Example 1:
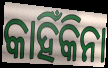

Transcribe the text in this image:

କାହିଁକିନା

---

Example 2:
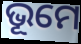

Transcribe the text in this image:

ଭୂମେ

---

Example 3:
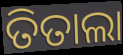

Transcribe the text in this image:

ତିତାଲା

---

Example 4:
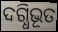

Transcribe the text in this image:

ଦଗ୍ଧିଭୂତ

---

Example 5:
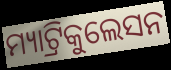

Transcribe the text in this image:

ମ୍ୟାଟ୍ରିକୁଲେସନ